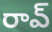
రావ్